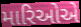
મારિઓએ